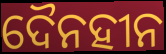
ଦୈନହୀନ